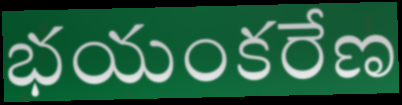
భయంకరేణ